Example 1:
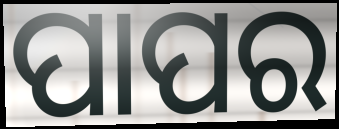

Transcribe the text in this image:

ପାପର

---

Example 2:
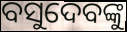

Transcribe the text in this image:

ବସୁଦେବଙ୍କୁ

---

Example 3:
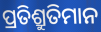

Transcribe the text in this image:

ପ୍ରତିଶ୍ରୁତିମାନ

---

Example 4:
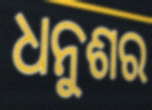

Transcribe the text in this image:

ଧନୁଶର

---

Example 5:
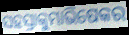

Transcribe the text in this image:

ସହସ୍ରାକୁମ୍ଭାଭିଷେକର